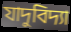
যাদুবিদ্যা